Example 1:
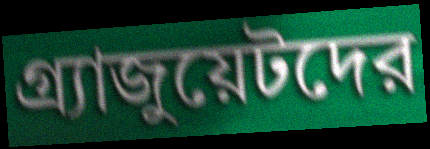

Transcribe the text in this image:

গ্র্যাজুয়েটদের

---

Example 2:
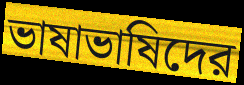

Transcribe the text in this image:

ভাষাভাষিদের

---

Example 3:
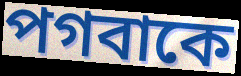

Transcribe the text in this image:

পগবাকে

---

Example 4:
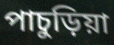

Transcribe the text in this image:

পাচুড়িয়া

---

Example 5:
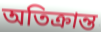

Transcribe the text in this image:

অতিক্রান্ত